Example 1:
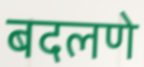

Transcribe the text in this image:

बदलणे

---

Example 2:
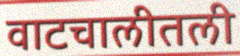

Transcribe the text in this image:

वाटचालीतली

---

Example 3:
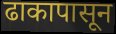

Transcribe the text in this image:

ढाकापासून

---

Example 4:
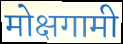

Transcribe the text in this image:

मोक्षगामी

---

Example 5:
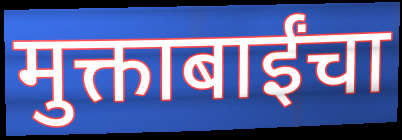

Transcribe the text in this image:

मुक्ताबाईंचा